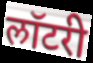
लॉटरी